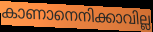
കാണാനെനിക്കാവില്ല